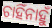
ଚାହିଁନାହୁଁ